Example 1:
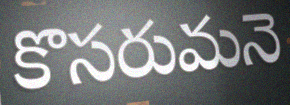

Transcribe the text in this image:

కొసరుమనె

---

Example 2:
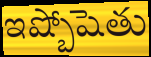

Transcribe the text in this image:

ఇష్బోషెతు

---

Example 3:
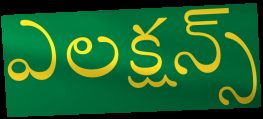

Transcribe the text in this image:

ఎలక్షన్స్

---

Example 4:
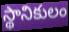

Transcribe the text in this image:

స్థానికులం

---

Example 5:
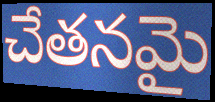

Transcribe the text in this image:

చేతనమై